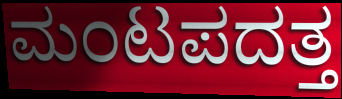
ಮಂಟಪದತ್ತ